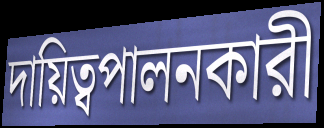
দায়িত্বপালনকারী